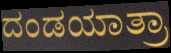
ದಂಡಯಾತ್ರಾ